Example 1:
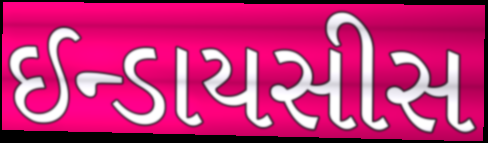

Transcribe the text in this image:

ઈન્ડાયસીસ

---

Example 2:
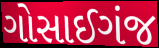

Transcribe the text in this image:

ગોસાઈગંજ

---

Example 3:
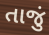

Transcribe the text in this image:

તાજું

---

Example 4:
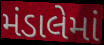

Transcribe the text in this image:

મંડાલેમાં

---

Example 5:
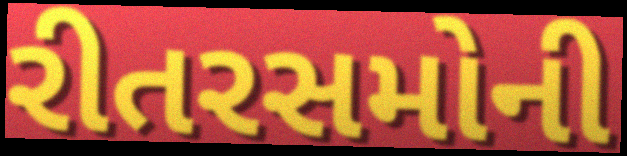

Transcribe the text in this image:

રીતરસમોની